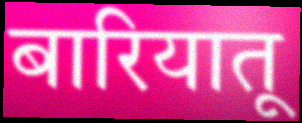
बारियातू